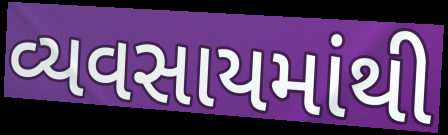
વ્યવસાયમાંથી